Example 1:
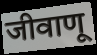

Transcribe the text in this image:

जीवाणू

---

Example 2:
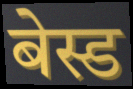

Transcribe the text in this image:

बेस्ड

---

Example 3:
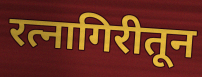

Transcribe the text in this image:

रत्नागिरीतून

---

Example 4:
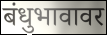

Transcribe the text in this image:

बंधुभावावर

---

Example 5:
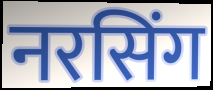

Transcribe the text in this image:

नरसिंग